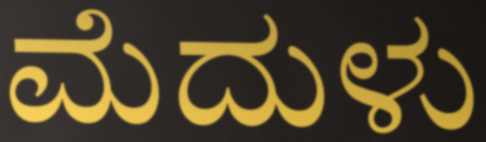
ಮೆದುಳು